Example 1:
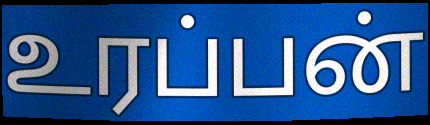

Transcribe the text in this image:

உரப்பன்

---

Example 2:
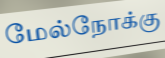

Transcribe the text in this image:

மேல்நோக்கு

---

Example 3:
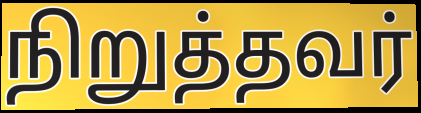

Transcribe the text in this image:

நிறுத்தவர்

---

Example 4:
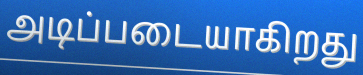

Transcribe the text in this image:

அடிப்படையாகிறது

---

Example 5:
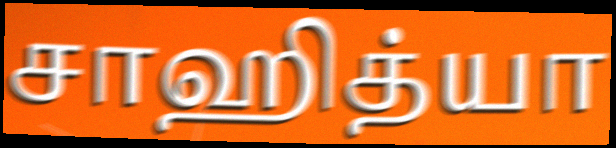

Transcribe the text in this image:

சாஹித்யா